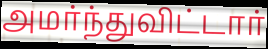
அமர்ந்துவிட்டார்